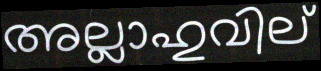
അല്ലാഹുവില്